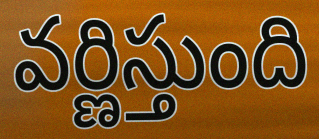
వర్ణిస్తుంది